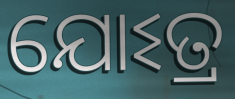
ଯୋଽତ୍ର